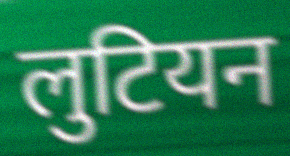
लुटियन